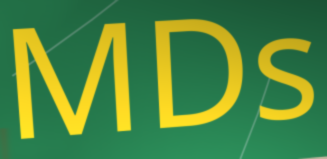
MDs